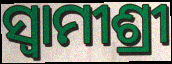
ସ୍ଵାମୀଶ୍ରୀ